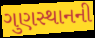
ગુણસ્થાનની